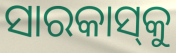
ସାରକାସ୍‌କୁ